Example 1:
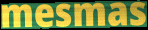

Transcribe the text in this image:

mesmas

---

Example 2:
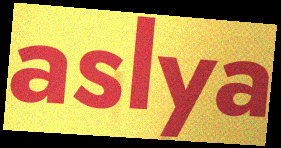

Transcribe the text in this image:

aslya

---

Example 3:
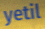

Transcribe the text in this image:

yetil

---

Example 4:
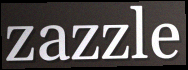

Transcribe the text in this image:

zazzle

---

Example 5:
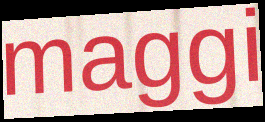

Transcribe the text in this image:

maggi